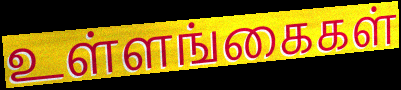
உள்ளங்கைகள்